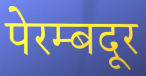
पेरम्बदूर